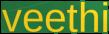
veethi